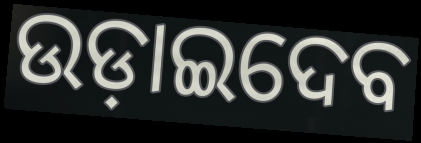
ଉଡ଼ାଇଦେବ